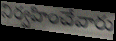
నిర్వహించేవారు